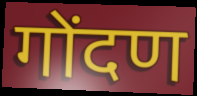
गोंदण